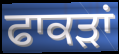
ਫਾਕੜਾਂ